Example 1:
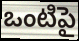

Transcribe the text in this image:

ఒంటిపై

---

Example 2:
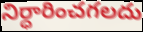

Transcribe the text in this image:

నిర్ధారించగలదు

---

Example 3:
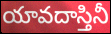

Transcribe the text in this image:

యావదాస్తినీ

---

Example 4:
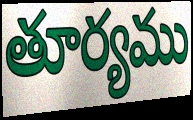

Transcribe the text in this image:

తూర్యము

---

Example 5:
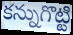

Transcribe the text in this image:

కన్నుగొట్టి